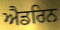
ਐਡਰਿਨ